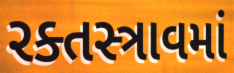
રક્તસ્ત્રાવમાં